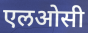
एलओसी